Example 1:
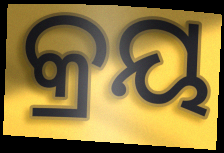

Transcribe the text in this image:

କ୍ରୟ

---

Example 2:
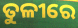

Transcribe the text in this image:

ତୁଳୀରେ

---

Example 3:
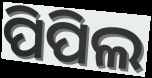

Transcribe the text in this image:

ପିପିଲ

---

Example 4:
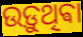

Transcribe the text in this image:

ଉଡ଼ୁଥିଵା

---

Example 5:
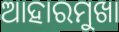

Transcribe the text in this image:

ଆହାରମୁଖା